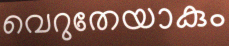
വെറുതേയാകും